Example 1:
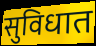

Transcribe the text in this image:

सुविधात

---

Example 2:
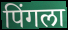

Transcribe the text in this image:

पिंगला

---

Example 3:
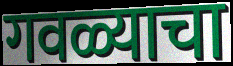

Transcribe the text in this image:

गवळ्याचा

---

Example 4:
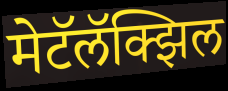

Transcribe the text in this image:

मेटॅलॅक्झिल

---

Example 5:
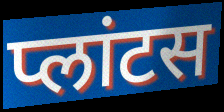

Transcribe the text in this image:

प्लांटस